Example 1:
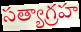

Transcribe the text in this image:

సత్యాగ్రహ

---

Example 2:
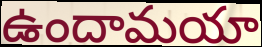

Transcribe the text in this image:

ఉందామయా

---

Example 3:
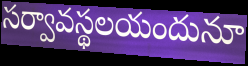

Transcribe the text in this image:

సర్వావస్థలయందునూ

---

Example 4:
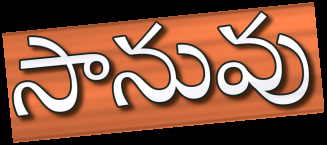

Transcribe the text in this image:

సానువు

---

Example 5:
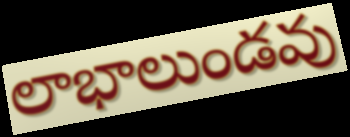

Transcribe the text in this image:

లాభాలుండవు